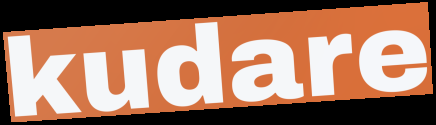
kudare